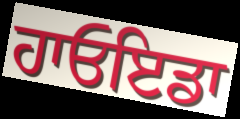
ਹਾਓਇਡਾ